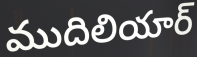
ముదిలియార్